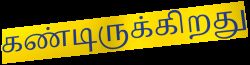
கண்டிருக்கிறது